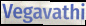
Vegavathi